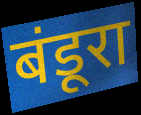
बंडूरा